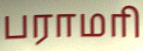
பராமரி